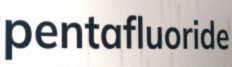
pentafluoride